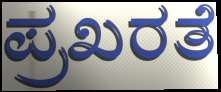
ಪ್ರಖರತೆ